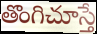
తొంగిచూస్తే